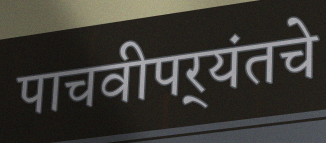
पाचवीपर्यंतचे